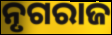
ନୃଗରାଜ